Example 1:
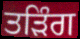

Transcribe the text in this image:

ਤੜਿੰਗ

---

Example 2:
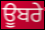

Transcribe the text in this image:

ਊਬਰੇ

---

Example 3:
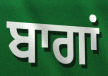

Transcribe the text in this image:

ਬਾਗਾਂ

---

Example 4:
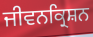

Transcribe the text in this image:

ਜੀਵਨਕ੍ਰਿਸ਼ਨ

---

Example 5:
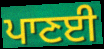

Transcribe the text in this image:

ਪਾਣਈ